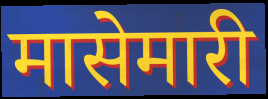
मासेमारी